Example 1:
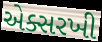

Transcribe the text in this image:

એક્સરખી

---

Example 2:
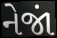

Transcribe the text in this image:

નેજાં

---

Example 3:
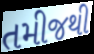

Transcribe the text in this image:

તમીજથી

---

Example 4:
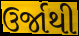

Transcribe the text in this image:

ઉર્જાથી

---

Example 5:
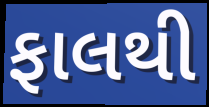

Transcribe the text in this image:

ફાલથી